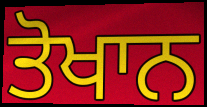
ਤੋਖਾਨ